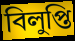
বিলুপ্তি